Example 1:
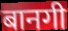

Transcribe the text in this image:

बानगी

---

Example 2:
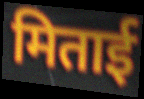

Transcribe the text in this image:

मिताई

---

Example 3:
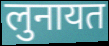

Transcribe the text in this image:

लुनायत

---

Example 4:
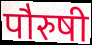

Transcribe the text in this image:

पौरुषी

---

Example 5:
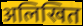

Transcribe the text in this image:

अलिखित